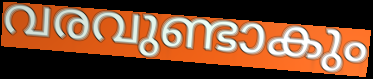
വരവുണ്ടാകും